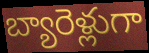
బ్యారెళ్లుగా